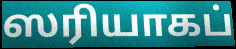
ஸரியாகப்